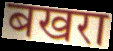
बखरा